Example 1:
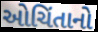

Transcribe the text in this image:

ઓચિંતાનો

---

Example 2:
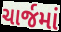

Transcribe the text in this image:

ચાર્જમાં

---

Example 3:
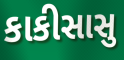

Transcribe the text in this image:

કાકીસાસુ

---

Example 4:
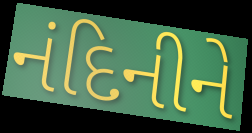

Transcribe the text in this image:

નંદિનીને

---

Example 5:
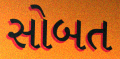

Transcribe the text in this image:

સોબત